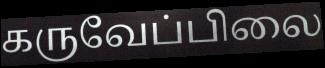
கருவேப்பிலை